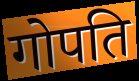
गोपति